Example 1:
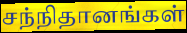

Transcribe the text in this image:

சந்நிதானங்கள்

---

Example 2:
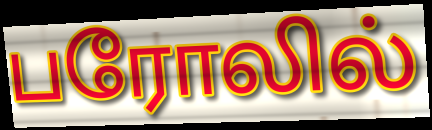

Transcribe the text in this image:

பரோலில்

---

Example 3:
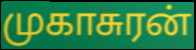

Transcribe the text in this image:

முகாசுரன்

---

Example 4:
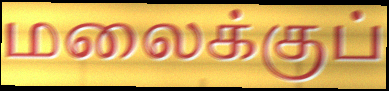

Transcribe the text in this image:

மலைக்குப்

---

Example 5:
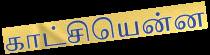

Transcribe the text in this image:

காட்சியென்ன